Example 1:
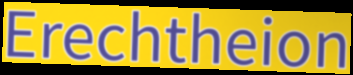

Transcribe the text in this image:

Erechtheion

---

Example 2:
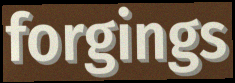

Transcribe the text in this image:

forgings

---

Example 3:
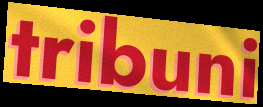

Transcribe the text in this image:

tribuni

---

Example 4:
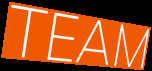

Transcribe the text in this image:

TEAM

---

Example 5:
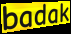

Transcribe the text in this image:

badak